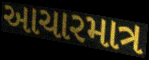
આચારમાત્ર